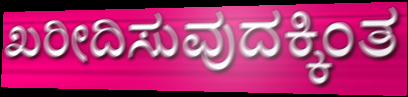
ಖರೀದಿಸುವುದಕ್ಕಿಂತ